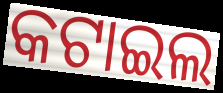
କଟାଇଲ